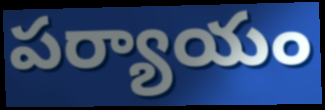
పర్యాయం